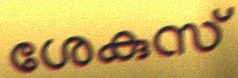
ശേകുസ്